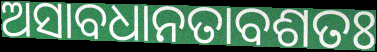
ଅସାବଧାନତାବଶତଃ